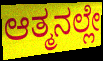
ಆತ್ಮನಲ್ಲೇ